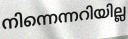
നിന്നെന്നറിയില്ല